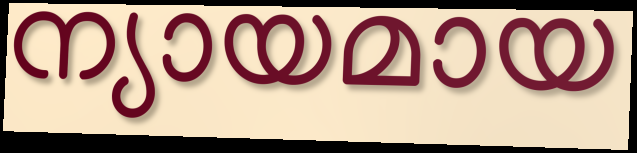
ന്യായമായ